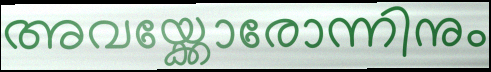
അവയ്ക്കോരോന്നിനും